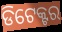
ଡିଟେକ୍ଟର